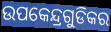
ଉପକେନ୍ଦ୍ରଗୁଡିକର